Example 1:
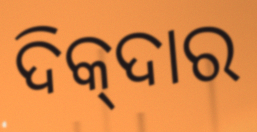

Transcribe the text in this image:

ଦିକ୍‍ଦାର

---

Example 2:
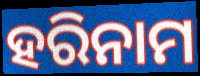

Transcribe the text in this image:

ହରିନାମ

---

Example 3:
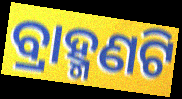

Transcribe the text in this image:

ବ୍ରାହ୍ମଣଟି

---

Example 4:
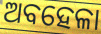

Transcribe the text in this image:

ଅବହେଳା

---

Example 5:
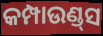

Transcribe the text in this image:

କମ୍ପାଉଣ୍ଡ୍‌ସ